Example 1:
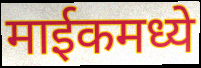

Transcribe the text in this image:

माईकमध्ये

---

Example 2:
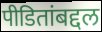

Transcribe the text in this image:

पीडितांबद्दल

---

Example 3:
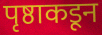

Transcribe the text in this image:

पृष्ठाकडून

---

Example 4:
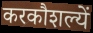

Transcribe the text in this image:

करकौशल्यें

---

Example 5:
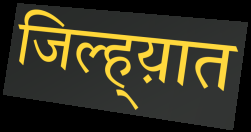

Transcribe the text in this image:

जिल्ह्य़ात